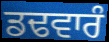
ਡਢਵਾਰੰ